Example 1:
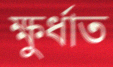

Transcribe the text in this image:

ক্ষুর্ধাত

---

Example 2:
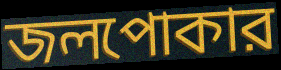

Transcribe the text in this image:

জলপোকার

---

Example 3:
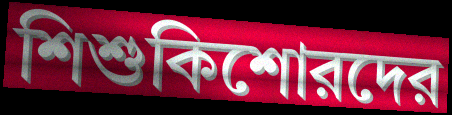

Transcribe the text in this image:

শিশুকিশোরদের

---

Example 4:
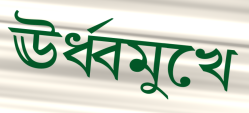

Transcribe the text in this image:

ঊর্ধ্বমুখে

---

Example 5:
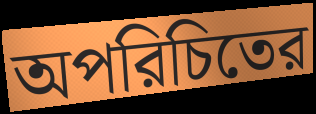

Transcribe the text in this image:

অপরিচিতের